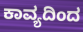
ಕಾವ್ಯದಿಂದ